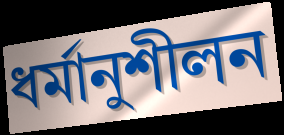
ধৰ্মানুশীলন